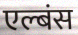
एल्बंस